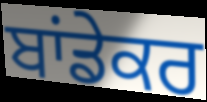
ਬਾਂਡੇਕਰ